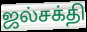
ஜல்சக்தி